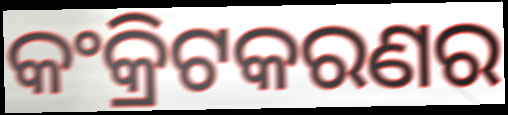
କଂକ୍ରିଟକରଣର